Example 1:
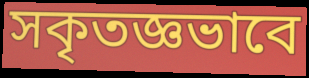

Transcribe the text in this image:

সকৃতজ্ঞভাবে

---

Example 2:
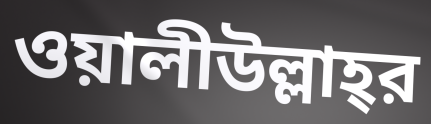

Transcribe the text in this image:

ওয়ালীউল্লাহ্‌র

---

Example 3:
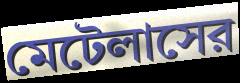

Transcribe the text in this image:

মেটেলাসের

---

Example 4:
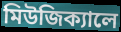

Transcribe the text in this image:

মিউজিক্যালে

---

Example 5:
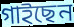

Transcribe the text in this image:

গাইছেন